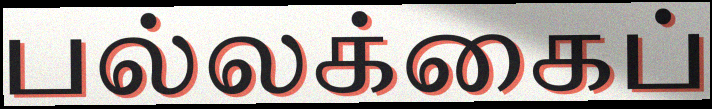
பல்லக்கைப்